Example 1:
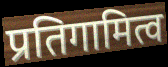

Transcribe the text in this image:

प्रतिगामित्व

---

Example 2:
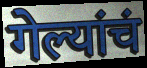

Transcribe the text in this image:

गेल्यांचं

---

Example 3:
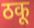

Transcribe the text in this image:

ठकू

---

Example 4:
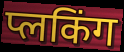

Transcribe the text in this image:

प्लकिंग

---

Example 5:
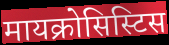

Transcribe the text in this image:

मायक्रोसिस्टिस